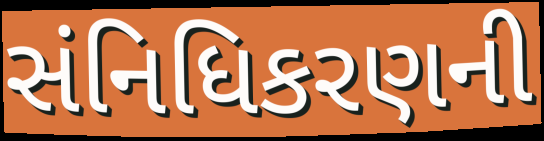
સંનિધિકરણની